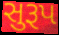
સુરૂપ